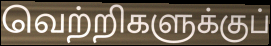
வெற்றிகளுக்குப்